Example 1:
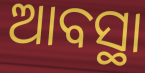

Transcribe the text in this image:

ଆବସ୍ଥା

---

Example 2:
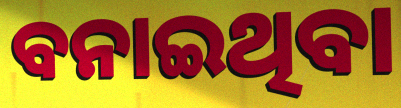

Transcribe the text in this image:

ବନାଇଥିବା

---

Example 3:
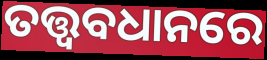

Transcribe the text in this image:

ତତ୍ତ୍ୱବଧାନରେ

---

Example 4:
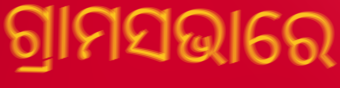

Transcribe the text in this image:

ଗ୍ରାମସଭାରେ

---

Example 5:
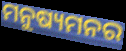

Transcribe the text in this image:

ମନୁଷ୍ୟମନର